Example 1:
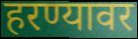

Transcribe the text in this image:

हरण्यावर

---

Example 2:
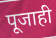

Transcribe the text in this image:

पूजाही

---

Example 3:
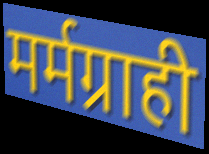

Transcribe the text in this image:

मर्मग्राही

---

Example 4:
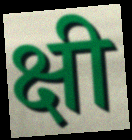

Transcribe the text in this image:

क्षी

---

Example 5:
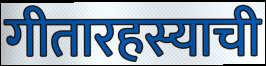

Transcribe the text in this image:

गीतारहस्याची